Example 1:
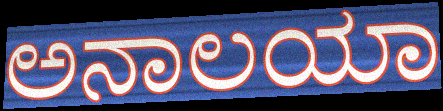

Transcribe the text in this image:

ಅನಾಲಯಾ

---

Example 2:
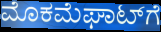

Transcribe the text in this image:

ಮೊಕಮೆಘಾಟ್‌ಗೆ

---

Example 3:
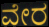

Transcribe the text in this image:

ವೇರ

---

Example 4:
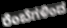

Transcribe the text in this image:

ರೆಂಬೆಗಳಿಂದ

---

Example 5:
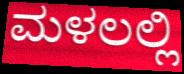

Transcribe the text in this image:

ಮಳಲಲ್ಲಿ